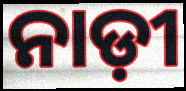
ନାଡ଼ୀ